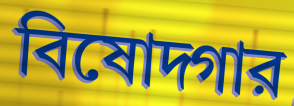
বিষোদ্গার